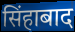
सिंहाबाद